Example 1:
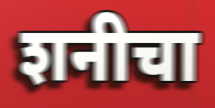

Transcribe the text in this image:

शनीचा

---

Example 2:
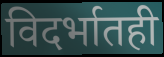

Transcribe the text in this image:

विदर्भातही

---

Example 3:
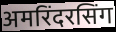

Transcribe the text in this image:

अमरिंदरसिंग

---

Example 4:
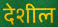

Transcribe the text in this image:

देशील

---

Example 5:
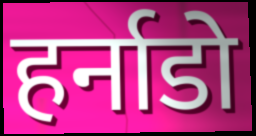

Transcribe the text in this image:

हर्नाडो